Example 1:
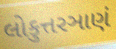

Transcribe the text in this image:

લોકુત્તરઞાણં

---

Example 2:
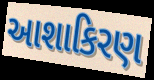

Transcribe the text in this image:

આશાકિરણ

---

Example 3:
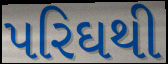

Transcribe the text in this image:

પરિઘથી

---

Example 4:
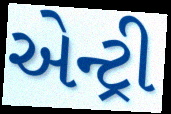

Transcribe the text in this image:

એન્ટ્રી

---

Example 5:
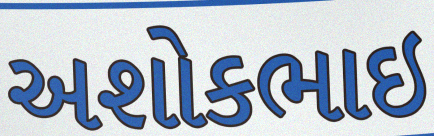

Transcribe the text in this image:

અશોકભાઇ